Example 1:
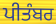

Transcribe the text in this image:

ਪੀਤੰਬਰ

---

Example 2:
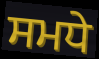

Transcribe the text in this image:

ਸਮਧੇ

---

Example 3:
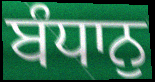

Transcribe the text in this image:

ਬੰਧਾਨੁ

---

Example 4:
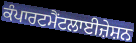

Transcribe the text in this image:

ਕੰਪਾਰਟਮੈਂਟਲਾਈਜ਼ੇਸ਼ਨ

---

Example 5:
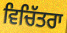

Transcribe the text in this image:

ਵਿਚਿੱਤਰਾ